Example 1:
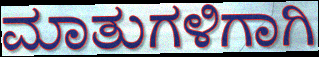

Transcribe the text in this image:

ಮಾತುಗಳಿಗಾಗಿ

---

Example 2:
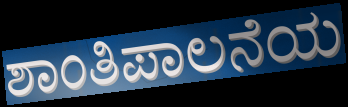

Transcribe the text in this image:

ಶಾಂತಿಪಾಲನೆಯ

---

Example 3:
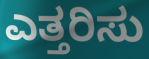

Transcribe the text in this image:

ಎತ್ತರಿಸು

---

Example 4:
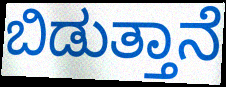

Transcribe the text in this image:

ಬಿಡುತ್ತಾನೆ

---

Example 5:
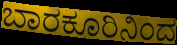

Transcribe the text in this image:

ಬಾರಕೂರಿನಿಂದ